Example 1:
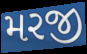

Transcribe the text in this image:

મરજી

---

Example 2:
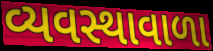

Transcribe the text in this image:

વ્યવસ્થાવાળા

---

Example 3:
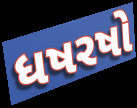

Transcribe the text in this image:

ધષરષો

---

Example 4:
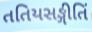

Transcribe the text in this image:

તતિયસઙ્ગીતિં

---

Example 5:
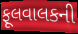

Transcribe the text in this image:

ફૂલવાલકની